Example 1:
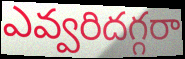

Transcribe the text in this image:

ఎవ్వరిదగ్గరా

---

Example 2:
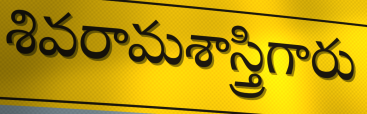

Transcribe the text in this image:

శివరామశాస్త్రిగారు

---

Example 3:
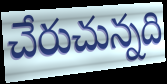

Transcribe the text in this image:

చేరుచున్నది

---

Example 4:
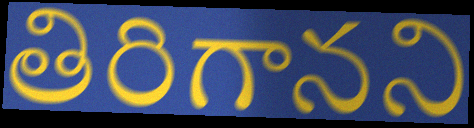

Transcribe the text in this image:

తిరిగానని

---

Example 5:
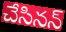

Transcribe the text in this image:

చేసినన్